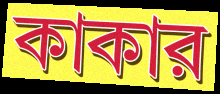
কাকার